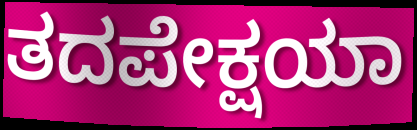
ತದಪೇಕ್ಷಯಾ